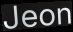
Jeon